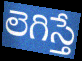
లెగిస్తే